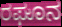
ರಘೂನ